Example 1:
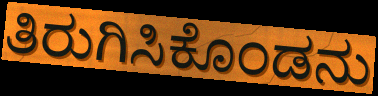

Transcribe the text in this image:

ತಿರುಗಿಸಿಕೊಂಡನು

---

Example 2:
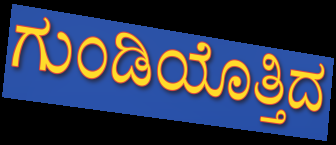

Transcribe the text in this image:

ಗುಂಡಿಯೊತ್ತಿದ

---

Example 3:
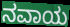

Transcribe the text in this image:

ನವಾಯ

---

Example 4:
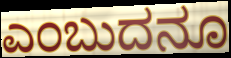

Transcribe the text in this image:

ಎಂಬುದನೂ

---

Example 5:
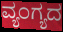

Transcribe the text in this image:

ವ್ಯಂಗ್ಯದ